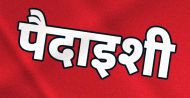
पैदाइशी